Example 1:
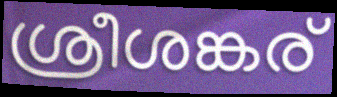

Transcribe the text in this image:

ശ്രീശങ്കര്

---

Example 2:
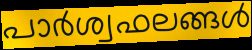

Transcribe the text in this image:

പാർശ്വഫലങ്ങൾ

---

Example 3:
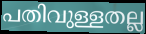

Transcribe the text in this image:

പതിവുള്ളതല്ല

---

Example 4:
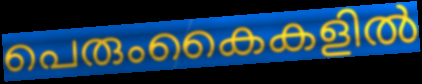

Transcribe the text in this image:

പെരുംകൈകളിൽ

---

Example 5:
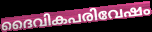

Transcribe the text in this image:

ദൈവികപരിവേഷം